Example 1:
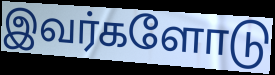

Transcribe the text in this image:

இவர்களோடு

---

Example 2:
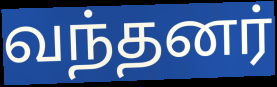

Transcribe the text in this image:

வந்தனர்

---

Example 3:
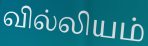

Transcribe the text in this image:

வில்லியம்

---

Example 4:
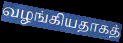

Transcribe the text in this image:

வழங்கியதாகத்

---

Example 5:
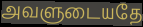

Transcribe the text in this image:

அவளுடையதே